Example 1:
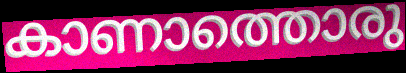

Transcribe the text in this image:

കാണാത്തൊരു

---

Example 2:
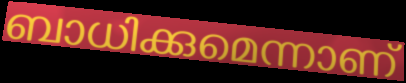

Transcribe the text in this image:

ബാധിക്കുമെന്നാണ്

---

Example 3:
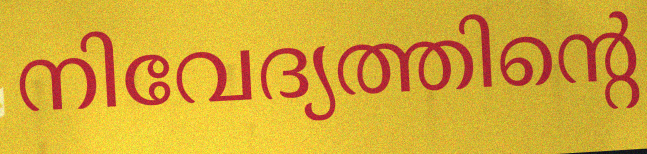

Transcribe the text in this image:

നിവേദ്യത്തിന്റെ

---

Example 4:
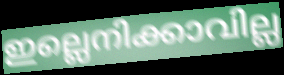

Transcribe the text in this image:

ഇല്ലെനിക്കാവില്ല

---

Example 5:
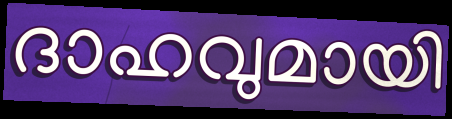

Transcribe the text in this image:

ദാഹവുമായി